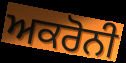
ਅਕਰੋਨੀ